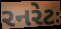
રનરેટઃ